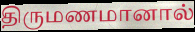
திருமணமானால்